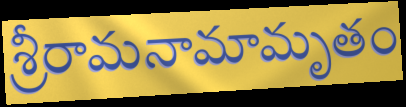
శ్రీరామనామామృతం